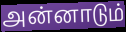
அன்னாடும்